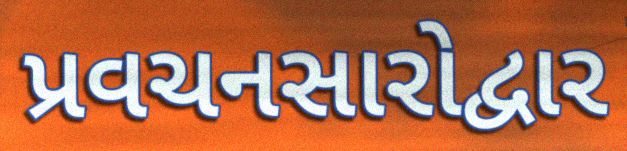
પ્રવચનસારોદ્વાર